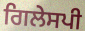
ਗਿਲੇਸਪੀ